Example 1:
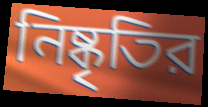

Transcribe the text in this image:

নিষ্কৃতির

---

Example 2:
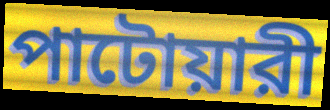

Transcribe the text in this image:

পাটোয়ারী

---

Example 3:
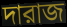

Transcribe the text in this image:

দারাজ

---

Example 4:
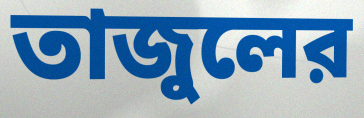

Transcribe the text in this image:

তাজুলের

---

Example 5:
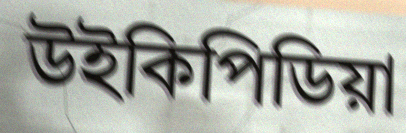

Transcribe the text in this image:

উইকিপিডিয়া